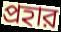
প্রহার